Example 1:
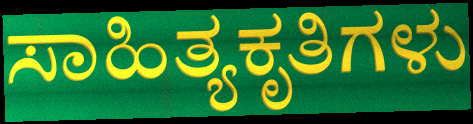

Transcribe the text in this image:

ಸಾಹಿತ್ಯಕೃತಿಗಳು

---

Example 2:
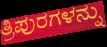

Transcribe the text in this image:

ತ್ರಿಪುರಗಳನ್ನು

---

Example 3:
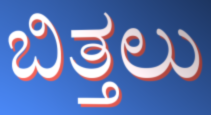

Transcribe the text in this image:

ಬಿತ್ತಲು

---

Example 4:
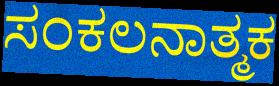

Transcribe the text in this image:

ಸಂಕಲನಾತ್ಮಕ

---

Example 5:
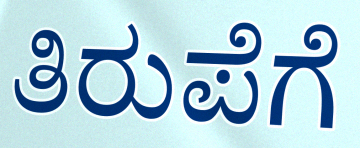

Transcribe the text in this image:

ತಿರುಪೆಗೆ